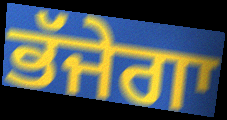
ਭੱਜੇਗਾ